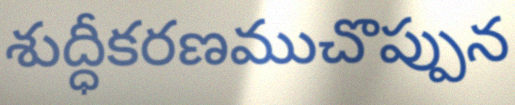
శుద్ధీకరణముచొప్పున